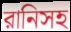
রানিসহ